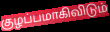
குழப்பமாகிவிடும்